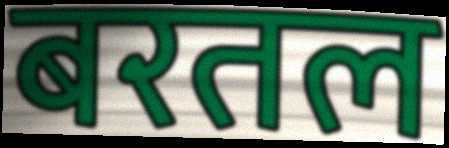
बरतल